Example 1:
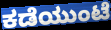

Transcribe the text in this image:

ಕಡೆಯುಂಟೆ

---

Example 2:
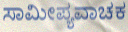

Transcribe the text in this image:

ಸಾಮೀಪ್ಯವಾಚಕ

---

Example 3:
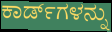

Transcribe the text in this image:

ಕಾರ್ಡ್‌ಗಳನ್ನು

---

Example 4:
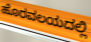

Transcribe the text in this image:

ಹೊರವಲಯದಲ್ಲಿ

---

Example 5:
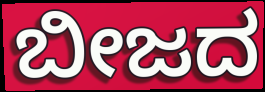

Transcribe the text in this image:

ಬೀಜದ